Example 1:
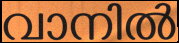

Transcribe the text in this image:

വാനിൽ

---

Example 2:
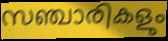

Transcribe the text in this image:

സഞ്ചാരികളും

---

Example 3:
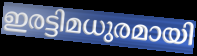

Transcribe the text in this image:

ഇരട്ടിമധുരമായി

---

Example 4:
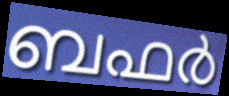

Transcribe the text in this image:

ബഫർ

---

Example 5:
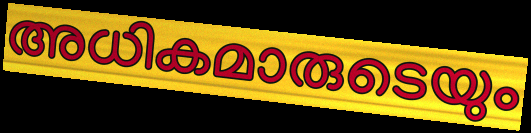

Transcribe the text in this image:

അധികമാരുടെയും